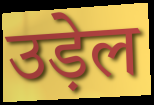
उड़ेल